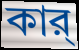
কার্